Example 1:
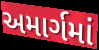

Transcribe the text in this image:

અમાર્ગમાં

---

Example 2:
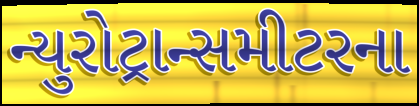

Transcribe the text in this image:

ન્યુરોટ્રાન્સમીટરના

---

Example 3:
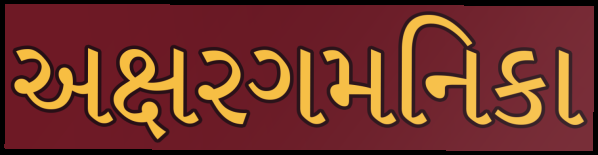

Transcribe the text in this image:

અક્ષરગમનિકા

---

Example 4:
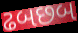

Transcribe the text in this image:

ઢબછબ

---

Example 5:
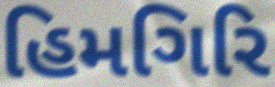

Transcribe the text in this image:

હિમગિરિ